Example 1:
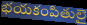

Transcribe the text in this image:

భయకంపితులై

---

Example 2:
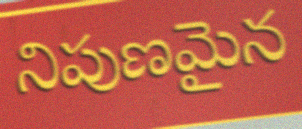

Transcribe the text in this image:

నిపుణమైన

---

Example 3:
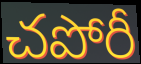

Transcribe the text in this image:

చపోరీ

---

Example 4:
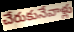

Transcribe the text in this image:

చేరుకునేవాళ్లు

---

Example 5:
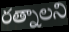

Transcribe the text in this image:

రత్నాలని